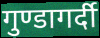
गुण्डागर्दी